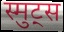
स्मुट्स